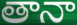
తానా